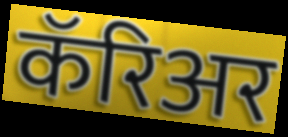
कॅरिअर